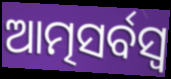
ଆତ୍ମସର୍ବସ୍ଵ